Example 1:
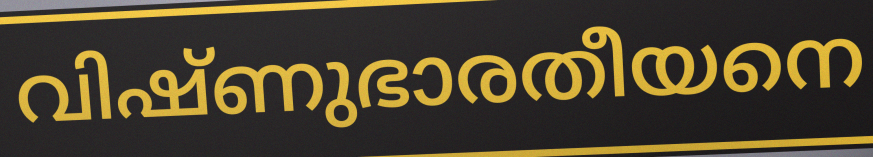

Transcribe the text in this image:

വിഷ്ണുഭാരതീയനെ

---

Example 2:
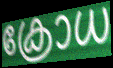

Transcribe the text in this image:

ക്രോധ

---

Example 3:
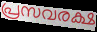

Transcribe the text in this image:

പ്രസവരക്ഷ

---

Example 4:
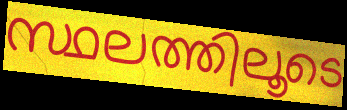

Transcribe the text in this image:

സ്ഥലത്തിലൂടെ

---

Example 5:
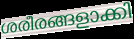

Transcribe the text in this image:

ശരീരങ്ങളാക്കി